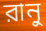
রানু